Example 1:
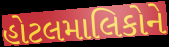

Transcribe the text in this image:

હોટલમાલિકોને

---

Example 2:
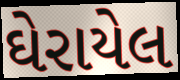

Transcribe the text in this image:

ઘેરાયેલ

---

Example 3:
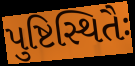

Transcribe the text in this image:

પુષ્ટિસ્થિતૈઃ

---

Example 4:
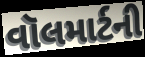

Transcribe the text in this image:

વૉલમાર્ટની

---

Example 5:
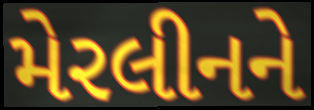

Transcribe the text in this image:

મેરલીનને